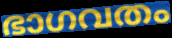
ഭാഗവതം